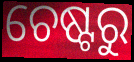
ଚେଷ୍ଟରୁ